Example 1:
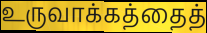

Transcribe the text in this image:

உருவாக்கத்தைத்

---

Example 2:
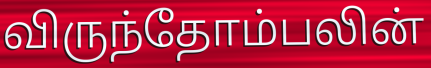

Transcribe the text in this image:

விருந்தோம்பலின்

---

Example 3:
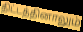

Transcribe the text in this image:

திட்டத்தினாலும்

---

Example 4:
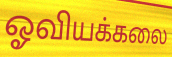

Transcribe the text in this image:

ஓவியக்கலை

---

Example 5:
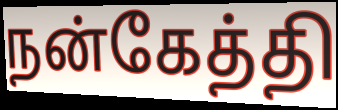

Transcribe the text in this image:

நன்கேத்தி